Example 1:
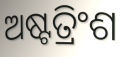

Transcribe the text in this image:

ଅଷ୍ଟତ୍ରିଂଶ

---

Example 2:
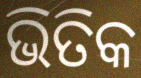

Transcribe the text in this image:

ଭିତିକ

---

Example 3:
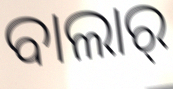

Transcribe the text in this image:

ବାଲାର୍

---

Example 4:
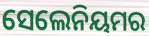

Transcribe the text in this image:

ସେଲେନିୟମର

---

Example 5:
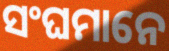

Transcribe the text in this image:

ସଂଘମାନେ